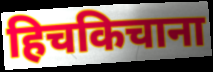
हिचकिचाना